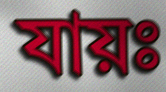
যায়ঃ